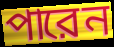
পারেন